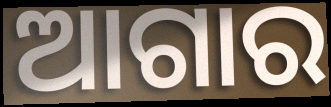
ଆଗାର